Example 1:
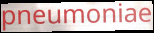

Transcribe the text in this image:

pneumoniae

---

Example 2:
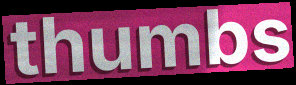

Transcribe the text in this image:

thumbs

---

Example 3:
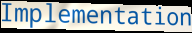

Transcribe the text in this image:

Implementation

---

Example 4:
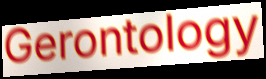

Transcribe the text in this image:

Gerontology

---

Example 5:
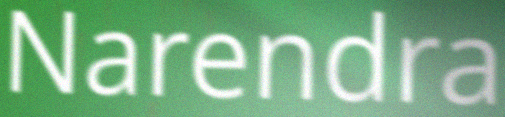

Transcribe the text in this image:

Narendra